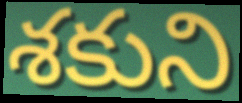
శకుని